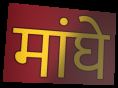
मांघे